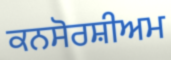
ਕਨਸੋਰਸ਼ੀਅਮ